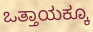
ಒತ್ತಾಯಕ್ಕೂ